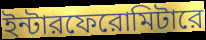
ইন্টারফেরোমিটারে